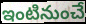
ఇంటినుంచే